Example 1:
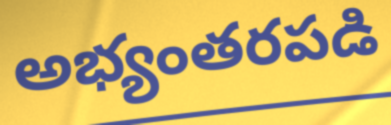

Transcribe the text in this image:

అభ్యంతరపడి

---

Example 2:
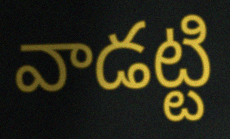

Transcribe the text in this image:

వాడట్టి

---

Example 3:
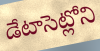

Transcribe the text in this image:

డేటాసెట్లోని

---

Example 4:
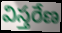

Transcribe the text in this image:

విస్తరేణ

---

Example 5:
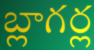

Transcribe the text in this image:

బ్లాగర్ల